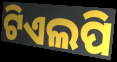
ଟିଏଲପି